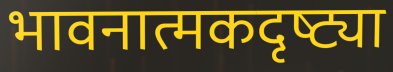
भावनात्मकदृष्ट्या